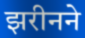
झरीनने